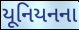
યૂનિયનના